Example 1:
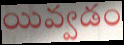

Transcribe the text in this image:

యివ్వడం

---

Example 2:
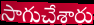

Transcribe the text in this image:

సాగుచేశారు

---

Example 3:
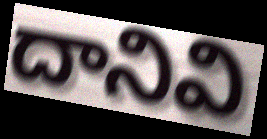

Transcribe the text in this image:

దానివి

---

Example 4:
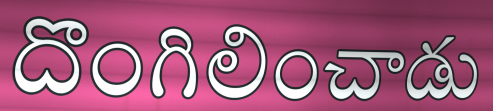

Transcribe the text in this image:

దొంగిలించాడు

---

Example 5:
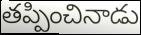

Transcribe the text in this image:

తప్పించినాడు